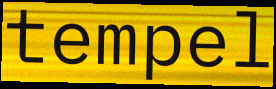
tempel